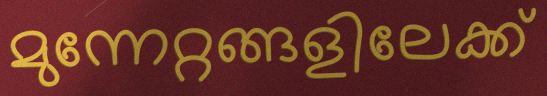
മുന്നേറ്റങ്ങളിലേക്ക്